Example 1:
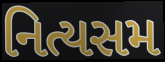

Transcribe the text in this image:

નિત્યસમ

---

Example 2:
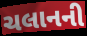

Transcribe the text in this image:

ચલાનની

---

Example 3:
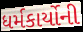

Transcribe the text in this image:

ધર્મકાર્યોની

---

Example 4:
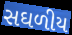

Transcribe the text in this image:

સઘળીય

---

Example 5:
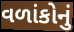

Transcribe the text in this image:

વળાંકોનું